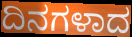
ದಿನಗಳಾದ